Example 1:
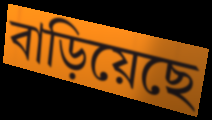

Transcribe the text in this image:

বাড়িয়েছে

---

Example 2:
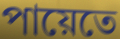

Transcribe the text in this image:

পায়েতে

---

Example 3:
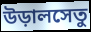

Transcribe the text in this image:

উড়ালসেতু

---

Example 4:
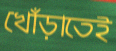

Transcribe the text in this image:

খোঁড়াতেই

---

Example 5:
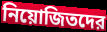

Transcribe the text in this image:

নিয়োজিতদের